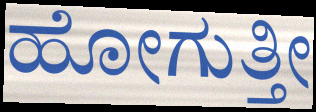
ಹೋಗುತ್ತೀ